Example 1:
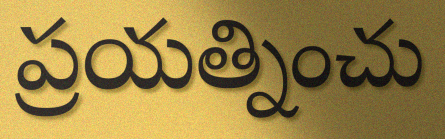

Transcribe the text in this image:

ప్రయత్నించు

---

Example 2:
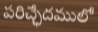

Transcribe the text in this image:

పరిచ్ఛేదములో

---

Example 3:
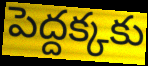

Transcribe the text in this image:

పెద్దక్కకు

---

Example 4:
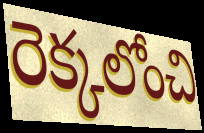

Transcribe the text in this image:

రెక్కలోంచి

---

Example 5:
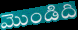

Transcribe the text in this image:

మొండిది